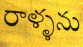
రాళ్ళను